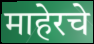
माहेरचे